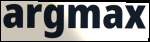
argmax